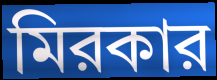
মিরকার